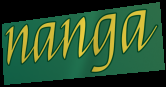
nanga